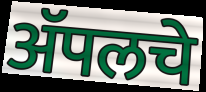
ॲपलचे